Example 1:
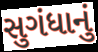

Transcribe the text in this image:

સુગંધાનું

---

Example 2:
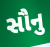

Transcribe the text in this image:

સૌનુ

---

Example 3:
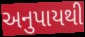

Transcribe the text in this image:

અનુપાયથી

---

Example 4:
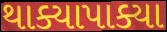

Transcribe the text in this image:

થાક્યાપાક્યા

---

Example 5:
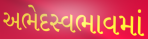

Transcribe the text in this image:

અભેદસ્વભાવમાં